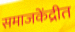
समाजकेंद्रीत